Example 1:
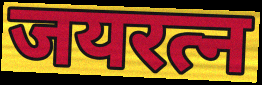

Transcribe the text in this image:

जयरत्न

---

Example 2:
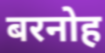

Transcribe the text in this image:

बरनोह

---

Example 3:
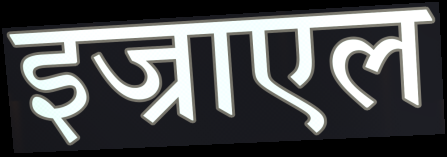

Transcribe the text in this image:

इज्राएल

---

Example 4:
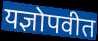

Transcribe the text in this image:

यज्ञोपवीत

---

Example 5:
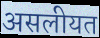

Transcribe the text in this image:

असलीयत